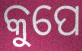
କୁପେ